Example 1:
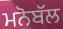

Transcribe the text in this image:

ਮਨੋਬੱਲ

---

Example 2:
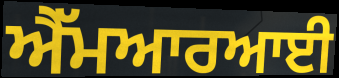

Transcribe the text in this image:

ਐੱਮਆਰਆਈ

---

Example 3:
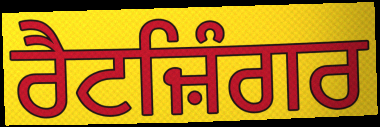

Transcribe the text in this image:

ਰੈਟਜ਼ਿੰਗਰ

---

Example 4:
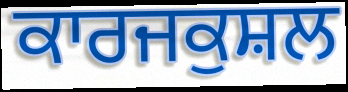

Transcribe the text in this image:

ਕਾਰਜਕੁਸ਼ਲ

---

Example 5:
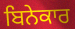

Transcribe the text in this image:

ਬਿਨੇਕਾਰ